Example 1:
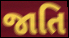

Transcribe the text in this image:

જાતિ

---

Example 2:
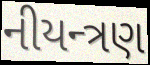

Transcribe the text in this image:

નીયન્ત્રણ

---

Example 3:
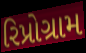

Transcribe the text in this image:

રિપ્રોગ્રામ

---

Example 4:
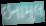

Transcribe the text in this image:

ઇનામુલ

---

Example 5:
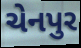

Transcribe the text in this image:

ચેનપુર